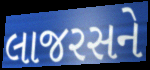
લાજરસને